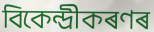
বিকেন্দ্ৰীকৰণৰ